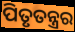
ପିତୃତନ୍ତ୍ରର